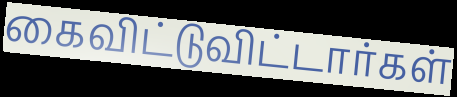
கைவிட்டுவிட்டார்கள்